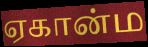
ஏகான்ம